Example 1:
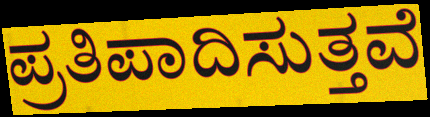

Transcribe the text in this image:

ಪ್ರತಿಪಾದಿಸುತ್ತವೆ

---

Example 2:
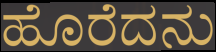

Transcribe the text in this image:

ಹೊರೆದನು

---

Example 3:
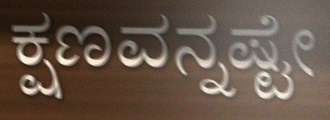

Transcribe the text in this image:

ಕ್ಷಣವನ್ನಷ್ಟೇ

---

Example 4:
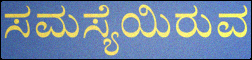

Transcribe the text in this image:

ಸಮಸ್ಯೆಯಿರುವ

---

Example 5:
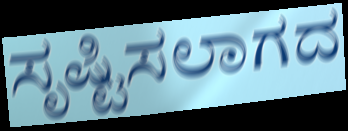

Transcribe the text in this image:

ಸೃಷ್ಟಿಸಲಾಗದ